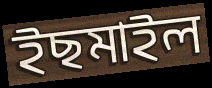
ইছমাইল